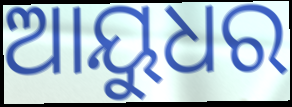
ଆୟୁଧର